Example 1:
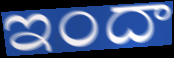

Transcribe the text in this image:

ఇందా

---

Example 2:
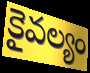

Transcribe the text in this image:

కైవల్యం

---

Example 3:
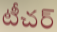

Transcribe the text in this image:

టీచర్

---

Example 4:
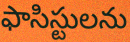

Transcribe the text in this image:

ఫాసిస్టులను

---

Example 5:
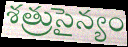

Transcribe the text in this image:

శత్రుసైన్యం